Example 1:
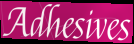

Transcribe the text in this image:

Adhesives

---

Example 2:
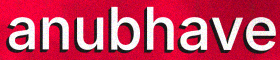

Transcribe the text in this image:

anubhave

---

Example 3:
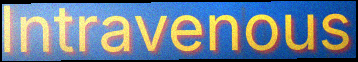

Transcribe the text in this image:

Intravenous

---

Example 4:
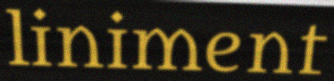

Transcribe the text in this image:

liniment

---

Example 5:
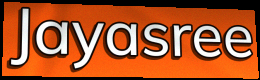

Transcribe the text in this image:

Jayasree